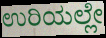
ಉರಿಯಲ್ಲೇ